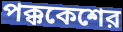
পক্ককেশের